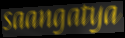
saangatya